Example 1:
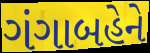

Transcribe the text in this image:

ગંગાબહેને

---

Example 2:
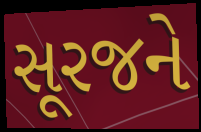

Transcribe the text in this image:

સૂરજને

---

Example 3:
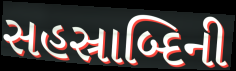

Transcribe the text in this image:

સહસ્રાબ્દિની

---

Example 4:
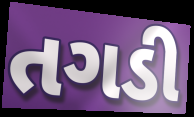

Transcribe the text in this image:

તગડી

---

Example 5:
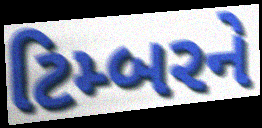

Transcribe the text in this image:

ટિમ્બરને